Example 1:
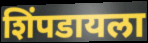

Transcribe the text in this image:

शिंपडायला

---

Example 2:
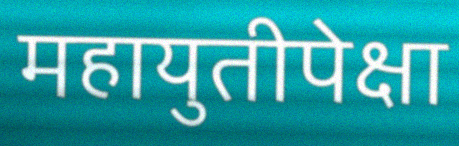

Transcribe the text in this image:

महायुतीपेक्षा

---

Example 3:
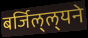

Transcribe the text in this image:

बर्जिल्ल्यने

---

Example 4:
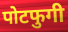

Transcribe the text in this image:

पोटफुगी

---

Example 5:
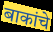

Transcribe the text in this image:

बाकांचे